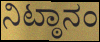
ನಿಟ್ಠಾನಂ